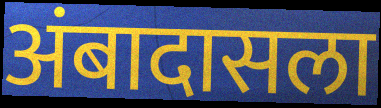
अंबादासला